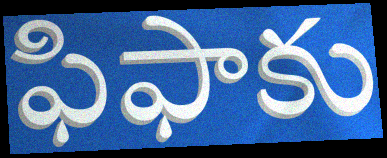
ఫిఫాకు